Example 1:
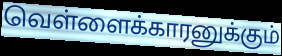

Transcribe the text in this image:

வெள்ளைக்காரனுக்கும்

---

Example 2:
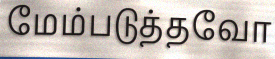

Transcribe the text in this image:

மேம்படுத்தவோ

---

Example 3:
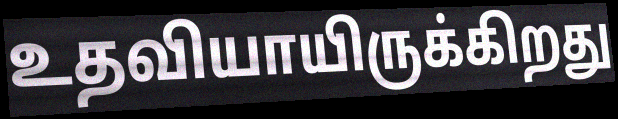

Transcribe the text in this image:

உதவியாயிருக்கிறது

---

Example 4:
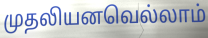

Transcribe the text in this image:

முதலியனவெல்லாம்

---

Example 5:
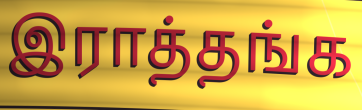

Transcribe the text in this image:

இராத்தங்க